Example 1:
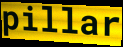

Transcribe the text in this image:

pillar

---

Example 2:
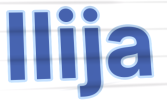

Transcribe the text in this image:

Ilija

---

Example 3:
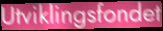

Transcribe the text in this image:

Utviklingsfondet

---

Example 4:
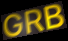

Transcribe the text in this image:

GRB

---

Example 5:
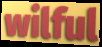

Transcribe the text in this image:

wilful